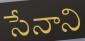
సేనాని